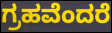
ಗ್ರಹವೆಂದರೆ